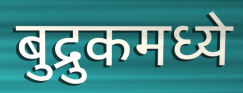
बुद्रुकमध्ये